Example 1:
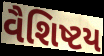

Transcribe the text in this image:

વૈશિષ્ટય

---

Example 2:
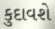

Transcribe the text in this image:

કુદાવશે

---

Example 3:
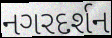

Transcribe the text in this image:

નગરદર્શન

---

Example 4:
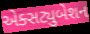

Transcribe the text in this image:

એક્સટ્યુબેશન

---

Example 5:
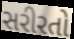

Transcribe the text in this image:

સરીરતો